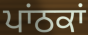
ਪਾਂਠਕਾਂ